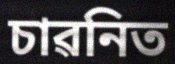
চাৱনিত